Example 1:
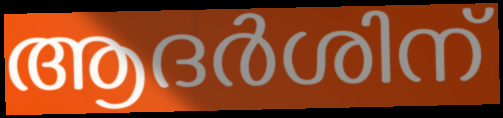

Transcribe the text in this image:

ആദർശിന്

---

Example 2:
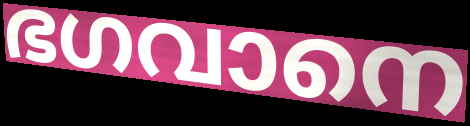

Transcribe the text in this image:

ഭഗവാനെ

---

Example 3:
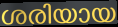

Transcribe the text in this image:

ശരിയായ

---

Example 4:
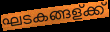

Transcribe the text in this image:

ഘടകങ്ങള്ക്ക്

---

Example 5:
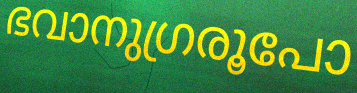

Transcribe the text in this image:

ഭവാനുഗ്രരൂപോ